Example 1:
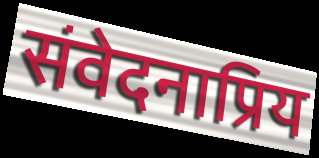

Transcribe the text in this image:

संवेदनाप्रिय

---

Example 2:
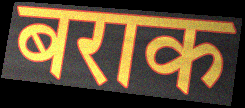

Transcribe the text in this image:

बराक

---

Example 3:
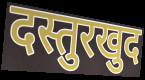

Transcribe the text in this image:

दस्तुरखुद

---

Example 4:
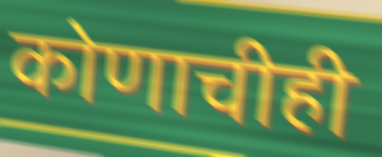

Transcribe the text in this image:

कोणाचीही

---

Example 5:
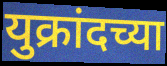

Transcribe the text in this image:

युक्रांदच्या